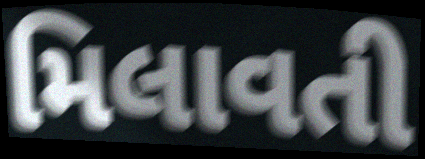
મિલાવતી